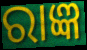
ରାଜ୍ଞ